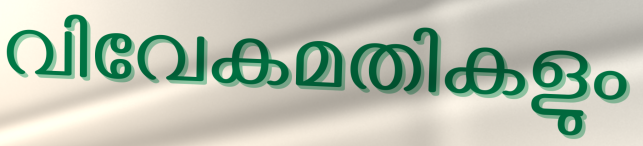
വിവേകമതികളും